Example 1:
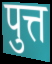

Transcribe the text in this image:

पुत्त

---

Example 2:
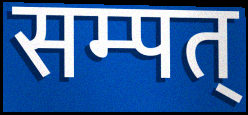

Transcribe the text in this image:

सम्पत्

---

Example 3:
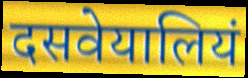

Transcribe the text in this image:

दसवेयालियं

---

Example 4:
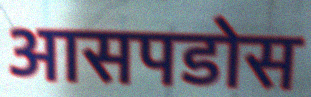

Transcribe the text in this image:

आसपडोस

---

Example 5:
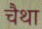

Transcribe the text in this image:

चैथा